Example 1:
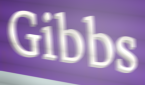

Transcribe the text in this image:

Gibbs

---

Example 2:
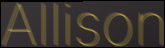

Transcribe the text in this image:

Allison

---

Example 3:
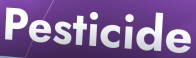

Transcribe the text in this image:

Pesticide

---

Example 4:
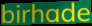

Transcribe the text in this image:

birhade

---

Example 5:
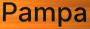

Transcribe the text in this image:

Pampa